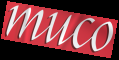
muco